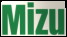
Mizu